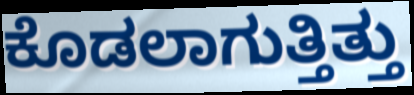
ಕೊಡಲಾಗುತ್ತಿತ್ತು